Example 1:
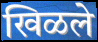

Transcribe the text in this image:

खिळले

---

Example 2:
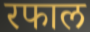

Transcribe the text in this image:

रफाल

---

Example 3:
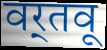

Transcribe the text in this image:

वर्तवू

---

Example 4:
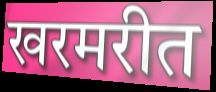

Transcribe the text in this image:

खरमरीत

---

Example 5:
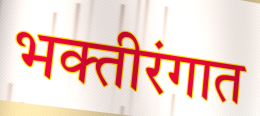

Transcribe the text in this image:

भक्तीरंगात